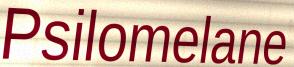
Psilomelane